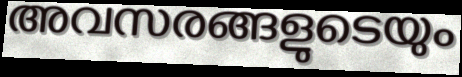
അവസരങ്ങളുടെയും